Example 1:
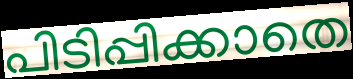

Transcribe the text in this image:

പിടിപ്പിക്കാതെ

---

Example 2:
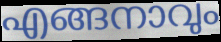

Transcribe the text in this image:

എങ്ങനാവും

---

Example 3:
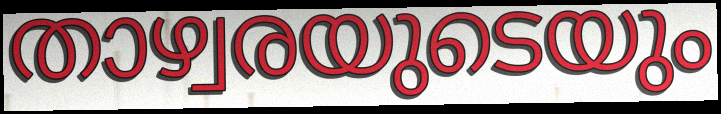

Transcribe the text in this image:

താഴ്വരയുടെയും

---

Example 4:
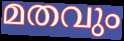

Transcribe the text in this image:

മതവും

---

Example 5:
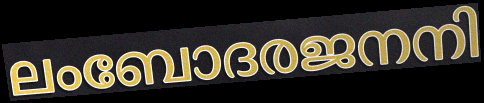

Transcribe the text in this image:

ലംബോദരജനനി